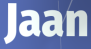
Jaan